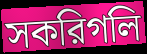
সকরিগলি